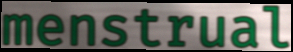
menstrual